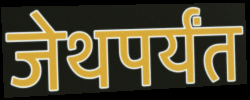
जेथपर्यंत